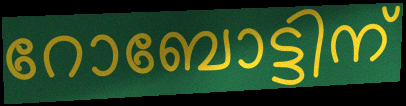
റോബോട്ടിന്